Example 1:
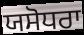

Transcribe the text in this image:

ਯਸੋਧਰਾ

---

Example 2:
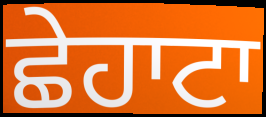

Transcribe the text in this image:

ਛੇਹਾਟਾ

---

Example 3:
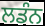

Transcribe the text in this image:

ਲਡੰਨ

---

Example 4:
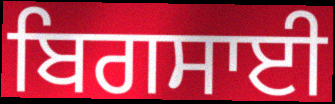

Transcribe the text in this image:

ਬਿਗਸਾਈ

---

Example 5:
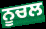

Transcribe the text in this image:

ਨੂਚਲ